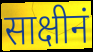
साक्षीनं